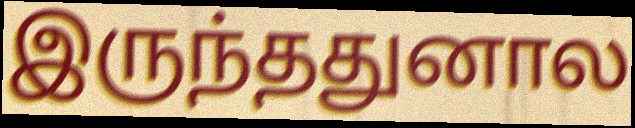
இருந்ததுனால